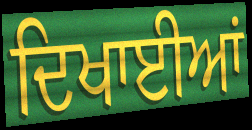
ਦਿਖਾਈਆਂ